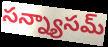
సన్న్యాసమ్